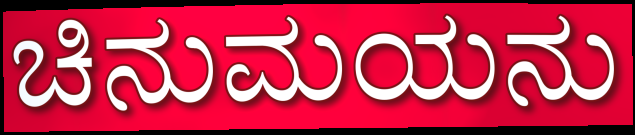
ಚಿನುಮಯನು